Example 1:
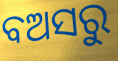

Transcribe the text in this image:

ବଅସରୁ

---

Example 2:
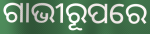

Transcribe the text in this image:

ଗାଭୀରୂପରେ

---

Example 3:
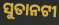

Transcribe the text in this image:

ସୁତାନଟୀ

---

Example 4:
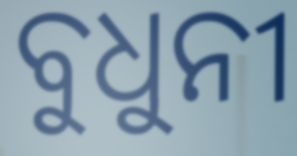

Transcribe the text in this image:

ବୁଧୁନୀ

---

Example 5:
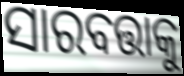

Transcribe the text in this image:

ସାରବତ୍ତାକୁ